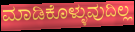
ಮಾಡಿಕೊಳ್ಳುವುದಿಲ್ಲ